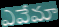
ఎవేమా